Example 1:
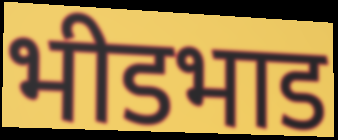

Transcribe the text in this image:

भीडभाड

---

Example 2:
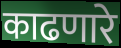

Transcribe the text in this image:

काढणारे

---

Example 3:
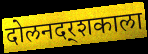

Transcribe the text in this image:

दोलनदर्शकाला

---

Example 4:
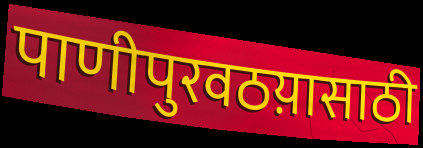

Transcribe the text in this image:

पाणीपुरवठय़ासाठी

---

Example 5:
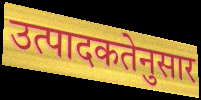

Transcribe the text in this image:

उत्पादकतेनुसार